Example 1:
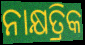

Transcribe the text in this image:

ନାକ୍ଷତ୍ରିକ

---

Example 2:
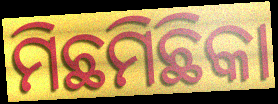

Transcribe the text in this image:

ମିଛମିଛିକା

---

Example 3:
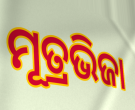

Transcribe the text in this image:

ମୂତ୍ରଭିଜା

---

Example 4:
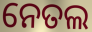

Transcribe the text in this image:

ନେତଲ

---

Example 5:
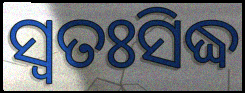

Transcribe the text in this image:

ସ୍ବତଃସିଦ୍ଧ